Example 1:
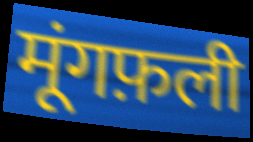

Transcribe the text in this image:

मूंगफ़ली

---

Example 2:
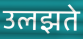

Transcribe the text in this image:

उलझते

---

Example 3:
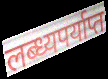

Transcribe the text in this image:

लब्ध्यपर्याप्त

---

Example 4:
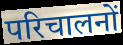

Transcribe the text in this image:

परिचालनों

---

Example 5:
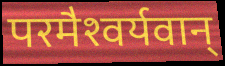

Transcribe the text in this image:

परमैश्वर्यवान्